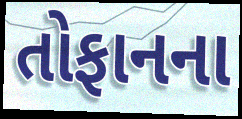
તોફાનના